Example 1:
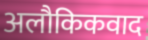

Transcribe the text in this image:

अलौकिकवाद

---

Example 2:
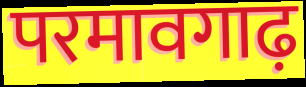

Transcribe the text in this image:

परमावगाढ़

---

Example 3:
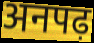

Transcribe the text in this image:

अनपढ़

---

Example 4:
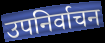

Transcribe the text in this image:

उपनिर्वाचन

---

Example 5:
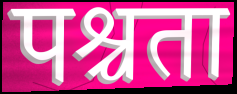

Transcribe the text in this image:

पश्चता